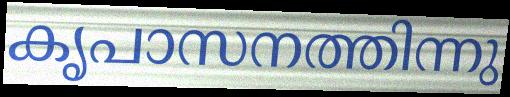
കൃപാസനത്തിന്നു